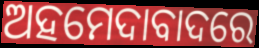
ଅହମେଦାବାଦରେ